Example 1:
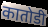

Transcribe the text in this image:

कातोडी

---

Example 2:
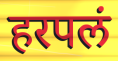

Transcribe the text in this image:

हरपलं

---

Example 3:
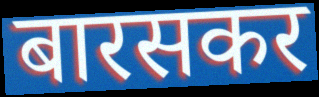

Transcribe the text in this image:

बारसकर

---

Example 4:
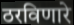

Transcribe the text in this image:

ठरविणारे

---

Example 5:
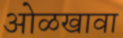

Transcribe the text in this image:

ओळखावा